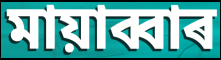
মায়াব্বাৰ